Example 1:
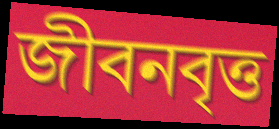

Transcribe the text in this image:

জীবনবৃত্ত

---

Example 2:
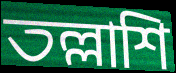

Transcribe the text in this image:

তল্লাশি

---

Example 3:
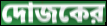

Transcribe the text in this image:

দোজকের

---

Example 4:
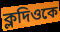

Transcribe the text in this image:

ক্লদিওকে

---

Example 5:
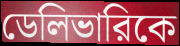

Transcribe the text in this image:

ডেলিভারিকে